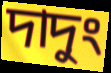
দাদুং